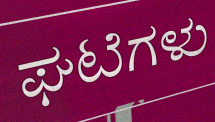
ಘಟೆಗಳು